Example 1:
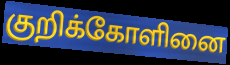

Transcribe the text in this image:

குறிக்கோளினை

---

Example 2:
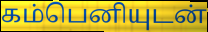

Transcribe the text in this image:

கம்பெனியுடன்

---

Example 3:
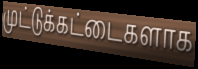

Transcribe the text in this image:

முட்டுக்கட்டைகளாக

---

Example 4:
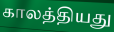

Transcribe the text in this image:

காலத்தியது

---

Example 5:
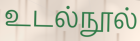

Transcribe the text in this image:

உடல்நூல்